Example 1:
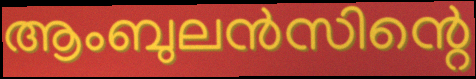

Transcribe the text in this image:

ആംബുലൻസിന്റെ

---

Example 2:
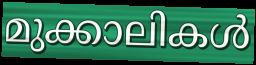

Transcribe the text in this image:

മുക്കാലികൾ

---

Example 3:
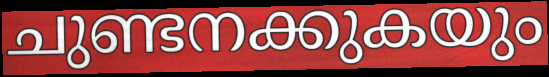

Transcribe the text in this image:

ചുണ്ടനക്കുകയും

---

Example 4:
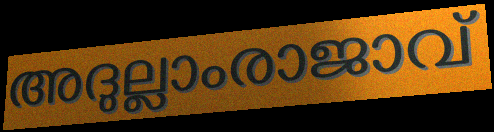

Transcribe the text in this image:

അദുല്ലാംരാജാവ്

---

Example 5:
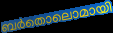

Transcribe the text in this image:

ബർതൊലൊമായി